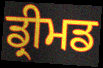
ਡ੍ਰੀਮਡ